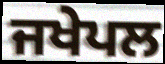
ਜਖੇਪਲ